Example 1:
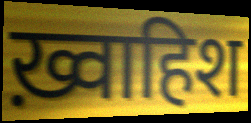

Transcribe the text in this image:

ख़्वाहिश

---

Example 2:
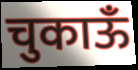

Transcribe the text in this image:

चुकाऊँ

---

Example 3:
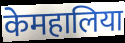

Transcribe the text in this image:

केमहालिया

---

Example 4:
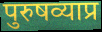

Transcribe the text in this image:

पुरुषव्याप्र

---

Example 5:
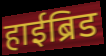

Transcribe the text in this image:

हाईब्रिड